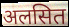
अलसित